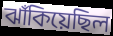
ঝাঁকিয়েছিল